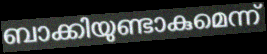
ബാക്കിയുണ്ടാകുമെന്ന്